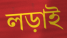
লড়াই